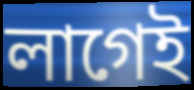
লাগেই